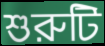
শুরুটি